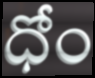
ధోం